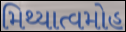
મિથ્યાત્વમોહ